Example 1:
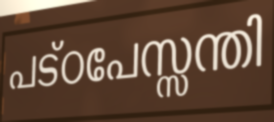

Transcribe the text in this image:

പട്ഠപേസ്സന്തി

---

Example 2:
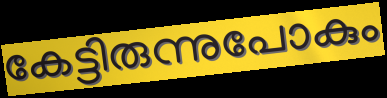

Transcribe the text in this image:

കേട്ടിരുന്നുപോകും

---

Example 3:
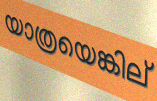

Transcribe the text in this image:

യാത്രയെങ്കില്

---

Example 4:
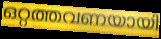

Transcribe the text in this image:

ഒറ്റത്തവണയായി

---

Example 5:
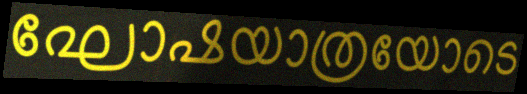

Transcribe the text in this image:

ഘോഷയാത്രയോടെ